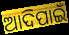
ଆଦିପାଇଁ